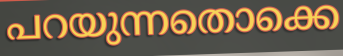
പറയുന്നതൊക്കെ